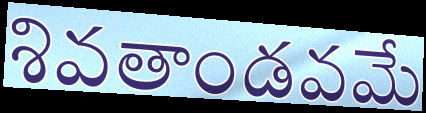
శివతాండవమే